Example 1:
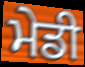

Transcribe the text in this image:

ਮੇਡੀ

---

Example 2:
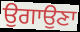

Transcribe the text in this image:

ਉਗਾਉਣਾ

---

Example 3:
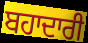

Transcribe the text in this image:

ਬਹਾਦਾਰੀ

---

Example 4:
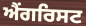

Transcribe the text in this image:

ਐਂਗਰਿਸਟ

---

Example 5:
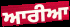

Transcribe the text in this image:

ਆਰੀਆ